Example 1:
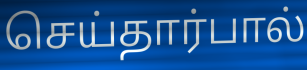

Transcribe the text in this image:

செய்தார்பால்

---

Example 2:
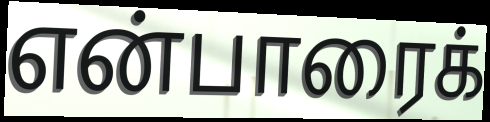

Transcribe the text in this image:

என்பாரைக்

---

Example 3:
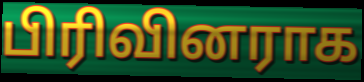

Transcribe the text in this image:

பிரிவினராக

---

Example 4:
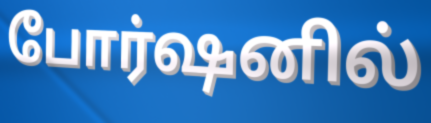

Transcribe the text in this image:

போர்ஷனில்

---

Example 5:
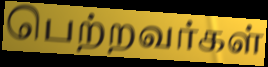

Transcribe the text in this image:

பெற்றவர்கள்